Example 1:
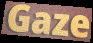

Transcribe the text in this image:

Gaze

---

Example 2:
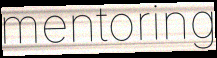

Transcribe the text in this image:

mentoring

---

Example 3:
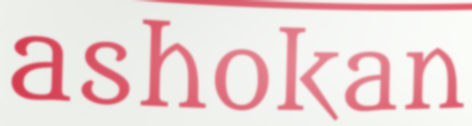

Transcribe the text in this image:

ashokan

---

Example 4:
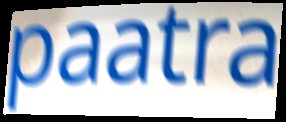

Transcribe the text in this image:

paatra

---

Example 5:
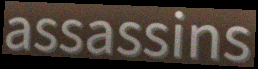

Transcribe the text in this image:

assassins